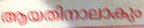
ആയതിനാലാകും